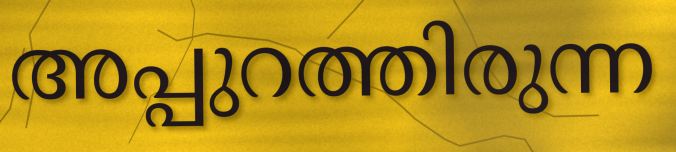
അപ്പുറത്തിരുന്ന